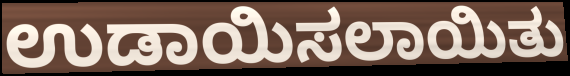
ಉಡಾಯಿಸಲಾಯಿತು